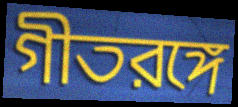
গীতরঙ্গে